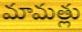
మామత్లు